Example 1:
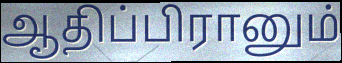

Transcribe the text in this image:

ஆதிப்பிரானும்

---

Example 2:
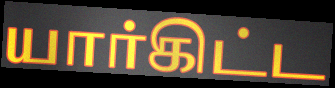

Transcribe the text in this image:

யார்கிட்ட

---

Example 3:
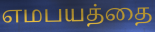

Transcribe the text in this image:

எமபயத்தை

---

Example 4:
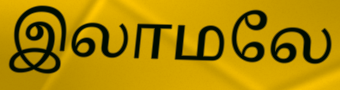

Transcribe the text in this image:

இலாமலே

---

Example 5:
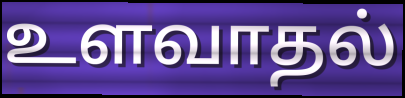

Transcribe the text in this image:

உளவாதல்